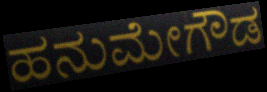
ಹನುಮೇಗೌಡ